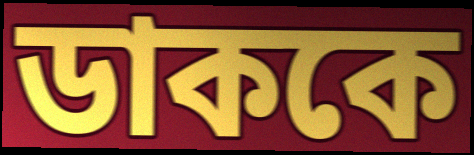
ডাককে